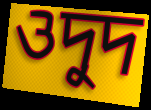
ওদুদ